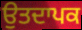
ਉਤਦਾਪਕ